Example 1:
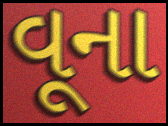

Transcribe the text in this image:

વૂના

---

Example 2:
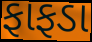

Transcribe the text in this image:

ફાફડા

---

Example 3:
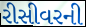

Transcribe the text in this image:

રીસીવરની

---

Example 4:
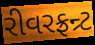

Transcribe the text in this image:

રીવરફ્રન્ર્ટ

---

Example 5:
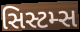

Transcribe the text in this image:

સિસ્ટમ્સ